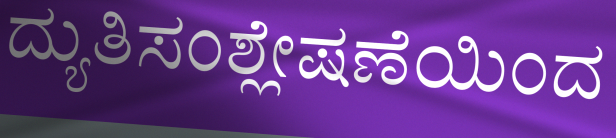
ದ್ಯುತಿಸಂಶ್ಲೇಷಣೆಯಿಂದ